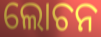
ଲୋଚନ